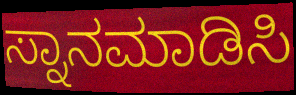
ಸ್ನಾನಮಾಡಿಸಿ